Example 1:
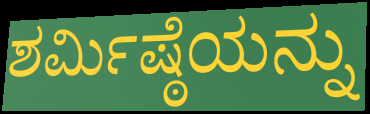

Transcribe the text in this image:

ಶರ್ಮಿಷ್ಠೆಯನ್ನು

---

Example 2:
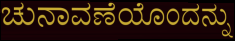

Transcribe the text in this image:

ಚುನಾವಣೆಯೊಂದನ್ನು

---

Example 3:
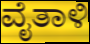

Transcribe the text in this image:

ವೈತಾಳಿ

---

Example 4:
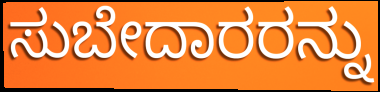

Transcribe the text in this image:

ಸುಬೇದಾರರನ್ನು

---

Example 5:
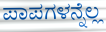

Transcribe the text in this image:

ಪಾಪಗಳನ್ನೆಲ್ಲ